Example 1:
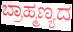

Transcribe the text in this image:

ಬ್ರಾಹ್ಮಣ್ಯದ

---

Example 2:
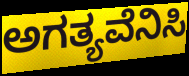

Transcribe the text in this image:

ಅಗತ್ಯವೆನಿಸಿ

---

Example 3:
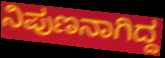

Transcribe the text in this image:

ನಿಪುಣನಾಗಿದ್ದ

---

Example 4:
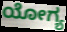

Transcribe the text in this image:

ಯೋಗ್ಯ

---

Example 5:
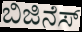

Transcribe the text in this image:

ಬಿಜಿನೆಸ್